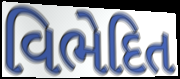
વિભેદિત